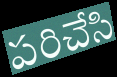
పరిచేసి